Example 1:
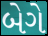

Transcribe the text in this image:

બેગે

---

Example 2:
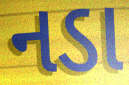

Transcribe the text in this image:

નડા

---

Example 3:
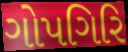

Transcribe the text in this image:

ગોપગિરિ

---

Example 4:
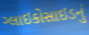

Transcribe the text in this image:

ગ્લાઇકોસાઇડનું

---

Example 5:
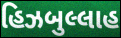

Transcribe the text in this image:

હિઝબુલ્લાહ